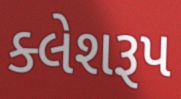
ક્લેશરૂપ